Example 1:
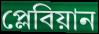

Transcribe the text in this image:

প্লেবিয়ান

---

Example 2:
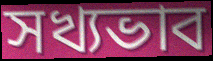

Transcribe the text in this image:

সখ্যভাব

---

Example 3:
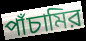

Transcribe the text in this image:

পাঁচামির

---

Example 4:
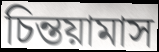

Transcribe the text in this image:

চিন্তয়ামাস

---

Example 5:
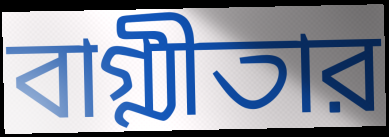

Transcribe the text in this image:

বাগ্মীতার